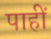
पाहीं